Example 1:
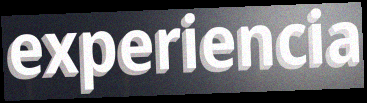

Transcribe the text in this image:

experiencia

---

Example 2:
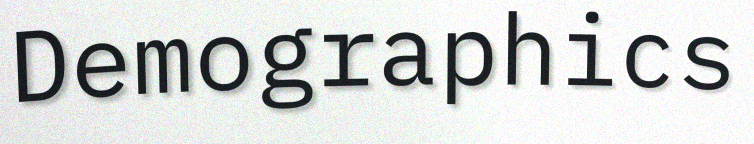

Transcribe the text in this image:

Demographics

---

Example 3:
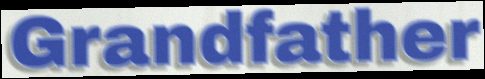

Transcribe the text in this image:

Grandfather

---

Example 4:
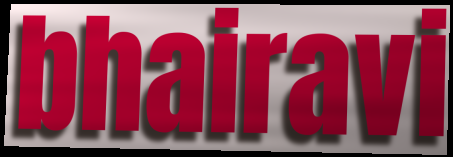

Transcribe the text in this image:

bhairavi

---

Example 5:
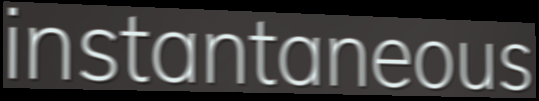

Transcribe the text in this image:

instantaneous